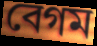
বেগম